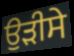
ਉੜੀਸੇ